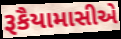
રૂકૈયામાસીએ